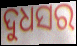
ଦୁଧସର